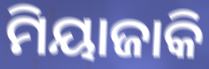
ମିୟାଜାକି